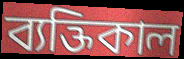
ব্যক্তিকাল